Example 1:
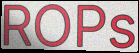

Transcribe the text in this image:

ROPs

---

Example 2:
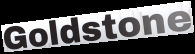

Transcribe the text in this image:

Goldstone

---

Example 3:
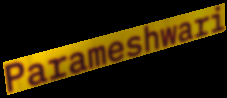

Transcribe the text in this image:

Parameshwari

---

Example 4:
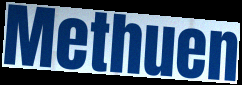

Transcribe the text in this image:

Methuen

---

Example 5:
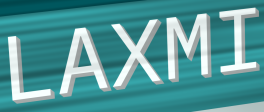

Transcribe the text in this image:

LAXMI